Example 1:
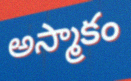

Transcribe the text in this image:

అస్మాకం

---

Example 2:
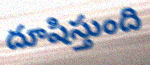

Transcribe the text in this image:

దూషిస్తుంది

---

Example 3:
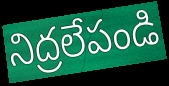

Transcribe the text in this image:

నిద్రలేపండి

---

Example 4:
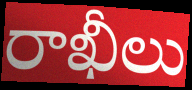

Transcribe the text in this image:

రాఖీలు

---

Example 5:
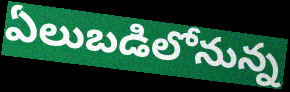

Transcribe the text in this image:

ఏలుబడిలోనున్న